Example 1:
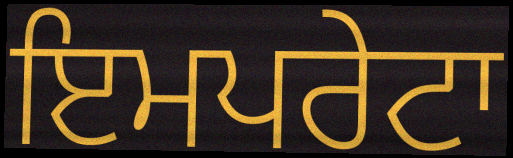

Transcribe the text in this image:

ਇਮਪਰੇਟਾ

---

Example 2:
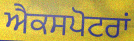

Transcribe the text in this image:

ਐਕਸਪੋਟਰਾਂ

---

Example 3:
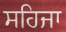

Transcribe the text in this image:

ਸਹਿਜਾ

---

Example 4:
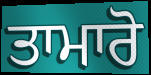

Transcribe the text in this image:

ਤਾਮਾਰੋ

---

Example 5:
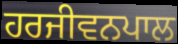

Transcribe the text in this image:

ਹਰਜੀਵਨਪਾਲ